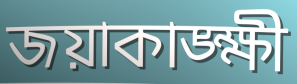
জয়াকাঙ্ক্ষী